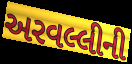
અરવલ્લીની